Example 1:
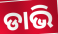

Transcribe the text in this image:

ଡାଭି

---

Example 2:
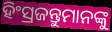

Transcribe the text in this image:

ହିଂସ୍ରଜନ୍ତୁମାନଙ୍କୁ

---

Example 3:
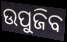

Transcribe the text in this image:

ଉପୁଜିବ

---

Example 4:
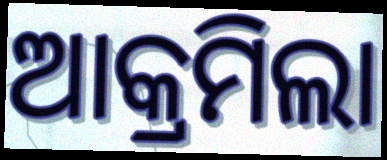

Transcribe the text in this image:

ଆକ୍ରମିଲା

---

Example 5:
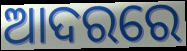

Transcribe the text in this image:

ଆଦରରେ